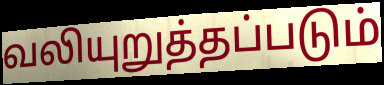
வலியுறுத்தப்படும்